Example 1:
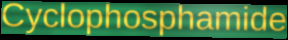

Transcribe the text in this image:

Cyclophosphamide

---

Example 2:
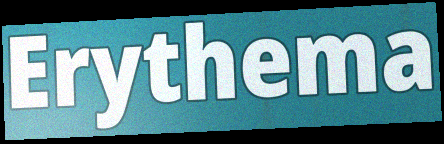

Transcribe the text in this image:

Erythema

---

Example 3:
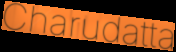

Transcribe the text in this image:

Charudatta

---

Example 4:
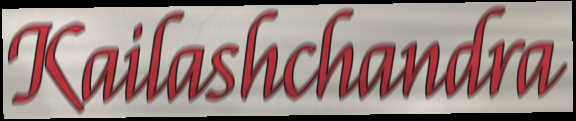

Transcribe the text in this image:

Kailashchandra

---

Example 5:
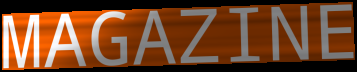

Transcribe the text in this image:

MAGAZINE